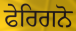
ਫੇਰਿਗਨੋ